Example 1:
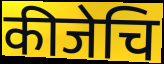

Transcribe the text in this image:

कीजेचि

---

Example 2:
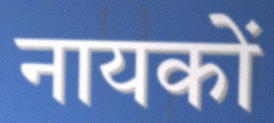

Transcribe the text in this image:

नायकों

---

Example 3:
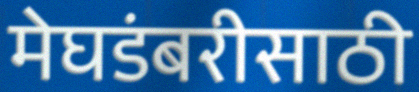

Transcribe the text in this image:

मेघडंबरीसाठी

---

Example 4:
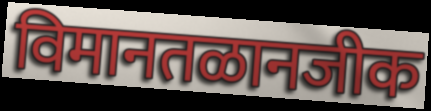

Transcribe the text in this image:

विमानतळानजीक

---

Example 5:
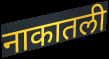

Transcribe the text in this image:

नाकातली